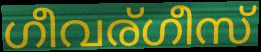
ഗീവര്ഗീസ്